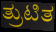
ತ್ರುಟಿತ